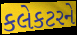
કલેકટરને